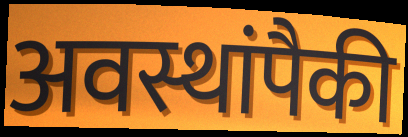
अवस्थांपैकी